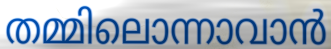
തമ്മിലൊന്നാവാൻ